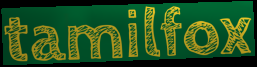
tamilfox